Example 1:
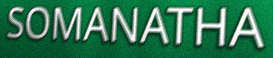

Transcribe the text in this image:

SOMANATHA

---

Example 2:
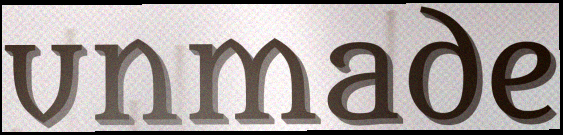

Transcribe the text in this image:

unmade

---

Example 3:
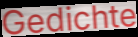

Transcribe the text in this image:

Gedichte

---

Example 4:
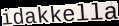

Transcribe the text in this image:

idakkella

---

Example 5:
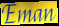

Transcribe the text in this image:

Eman